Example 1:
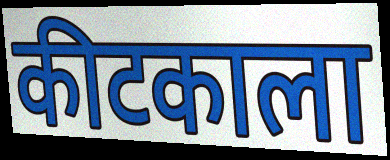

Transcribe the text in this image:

कीटकाला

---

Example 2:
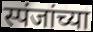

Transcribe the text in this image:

स्पंजांच्या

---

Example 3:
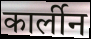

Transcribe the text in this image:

कार्लीन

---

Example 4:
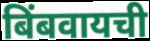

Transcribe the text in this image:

बिंबवायची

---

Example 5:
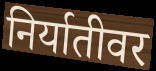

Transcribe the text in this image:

निर्यातीवर